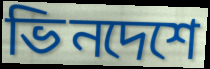
ভিনদেশে